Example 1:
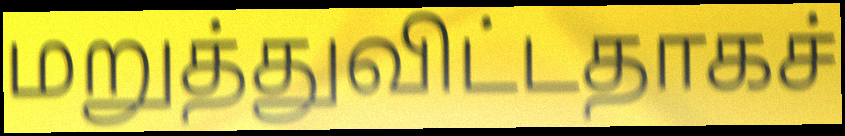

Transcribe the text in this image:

மறுத்துவிட்டதாகச்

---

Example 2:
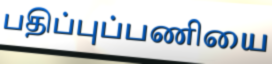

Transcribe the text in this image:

பதிப்புப்பணியை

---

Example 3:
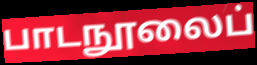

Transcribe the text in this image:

பாடநூலைப்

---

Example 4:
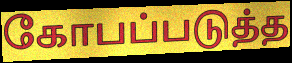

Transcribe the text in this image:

கோபப்படுத்த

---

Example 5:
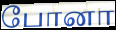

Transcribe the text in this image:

போனா